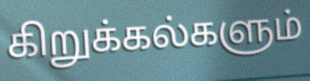
கிறுக்கல்களும்